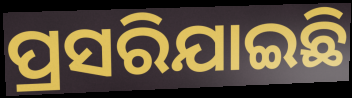
ପ୍ରସରିଯାଇଛି